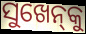
ସୁଖେନ୍‌କୁ